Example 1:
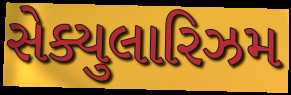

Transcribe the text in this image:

સેક્યુલારિઝમ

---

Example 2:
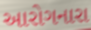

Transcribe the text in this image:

આરોગનારા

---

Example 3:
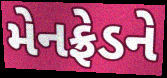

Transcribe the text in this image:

મેનફ્રેડને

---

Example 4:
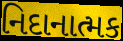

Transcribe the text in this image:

નિદાનાત્મક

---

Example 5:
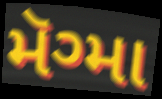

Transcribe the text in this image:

મૅગ્મા